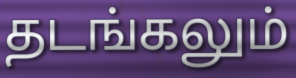
தடங்கலும்